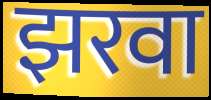
झरवा